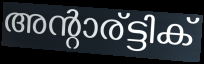
അന്റാര്ട്ടിക്